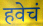
हवेचं